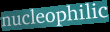
nucleophilic